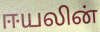
ஈயலின்